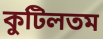
কুটিলতম